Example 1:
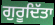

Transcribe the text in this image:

ਗੁਰੂਦਿੱਤਾ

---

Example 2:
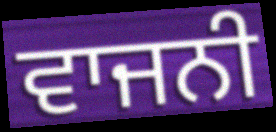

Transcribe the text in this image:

ਵਾਜਨੀ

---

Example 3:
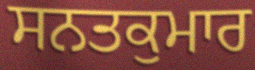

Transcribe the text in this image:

ਸਨਤਕੁਮਾਰ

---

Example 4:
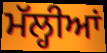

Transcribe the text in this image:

ਮੱਲ੍ਹੀਆਂ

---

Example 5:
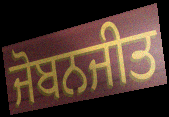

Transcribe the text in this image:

ਜੋਬਨਜੀਤ